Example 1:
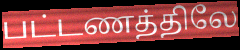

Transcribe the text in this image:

பட்டணத்திலே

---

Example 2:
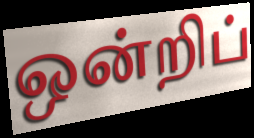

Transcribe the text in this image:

ஒன்றிப்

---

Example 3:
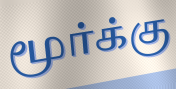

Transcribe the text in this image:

மூர்க்கு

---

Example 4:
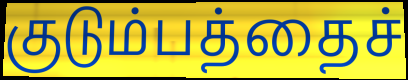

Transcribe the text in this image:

குடும்பத்தைச்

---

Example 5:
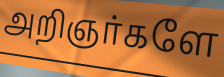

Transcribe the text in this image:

அறிஞர்களே